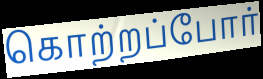
கொற்றப்போர்